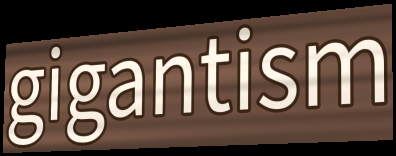
gigantism